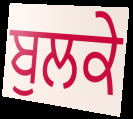
ਬੁਲਕੇ